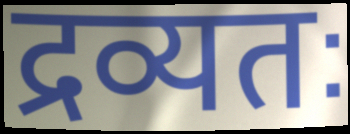
द्रव्यतः